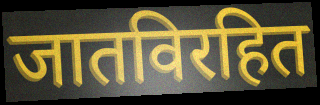
जातविरहित